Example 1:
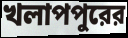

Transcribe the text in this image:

খলাপপুরের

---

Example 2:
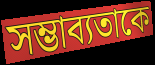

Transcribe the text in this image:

সম্ভাব্যতাকে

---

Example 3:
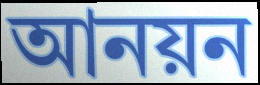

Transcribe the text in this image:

আনয়ন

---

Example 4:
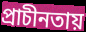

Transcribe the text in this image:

প্রাচীনতায়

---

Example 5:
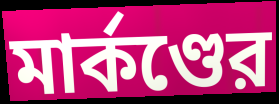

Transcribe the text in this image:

মার্কণ্ডের